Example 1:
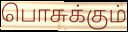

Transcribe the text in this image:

பொசுக்கும்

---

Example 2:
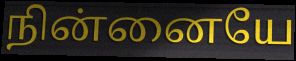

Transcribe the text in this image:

நின்னையே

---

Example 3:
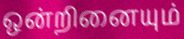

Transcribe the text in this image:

ஒன்றினையும்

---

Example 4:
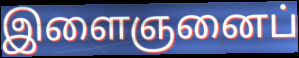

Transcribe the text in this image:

இளைஞனைப்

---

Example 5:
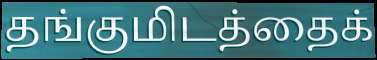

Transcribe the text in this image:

தங்குமிடத்தைக்